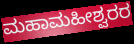
ಮಹಾಮಹೀಶ್ವರರ